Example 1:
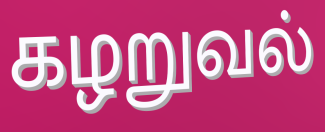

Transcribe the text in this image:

கழறுவல்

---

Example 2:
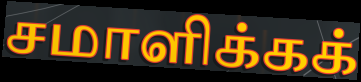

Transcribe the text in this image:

சமாளிக்கக்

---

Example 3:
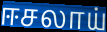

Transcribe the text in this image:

ஈசலாய்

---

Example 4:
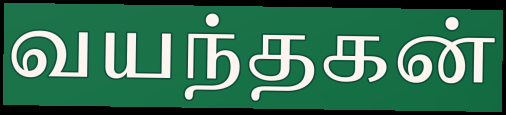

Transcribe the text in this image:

வயந்தகன்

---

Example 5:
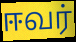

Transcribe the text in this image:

ஈவர்